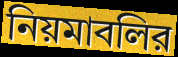
নিয়মাবলির